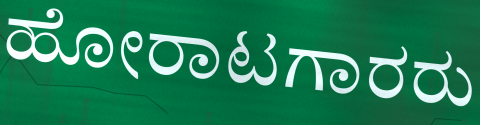
ಹೋರಾಟಗಾರರು